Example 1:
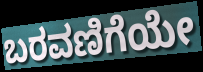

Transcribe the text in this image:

ಬರವಣಿಗೆಯೇ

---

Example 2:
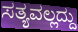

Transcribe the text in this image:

ಸತ್ಯವಲ್ಲದ್ದು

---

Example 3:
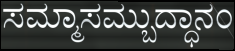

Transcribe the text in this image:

ಸಮ್ಮಾಸಮ್ಬುದ್ಧಾನಂ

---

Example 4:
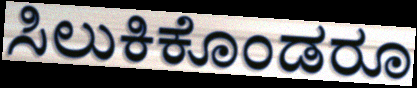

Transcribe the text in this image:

ಸಿಲುಕಿಕೊಂಡರೂ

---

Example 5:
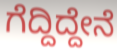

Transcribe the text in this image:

ಗೆದ್ದಿದ್ದೇನೆ